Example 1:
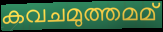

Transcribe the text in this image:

കവചമുത്തമമ്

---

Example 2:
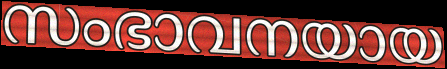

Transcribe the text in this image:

സംഭാവനയായ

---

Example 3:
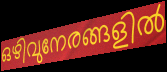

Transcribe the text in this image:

ഒഴിവുനേരങ്ങളിൽ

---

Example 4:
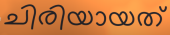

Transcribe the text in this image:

ചിരിയായത്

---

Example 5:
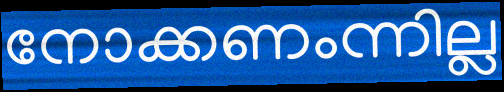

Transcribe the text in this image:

നോക്കണംന്നില്ല